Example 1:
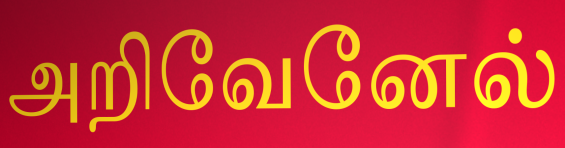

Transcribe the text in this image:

அறிவேனேல்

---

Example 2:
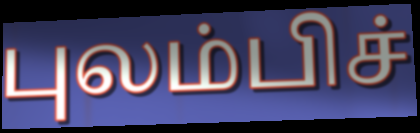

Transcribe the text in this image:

புலம்பிச்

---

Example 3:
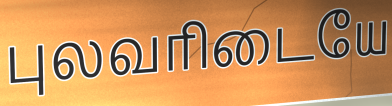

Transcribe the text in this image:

புலவரிடையே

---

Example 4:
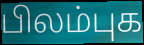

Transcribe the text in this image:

பிலம்புக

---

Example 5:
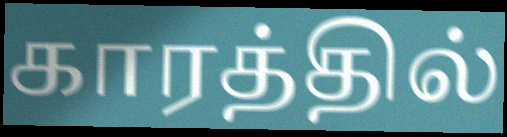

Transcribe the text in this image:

காரத்தில்